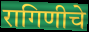
रागिणीचे